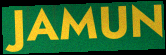
JAMUN